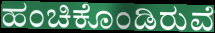
ಹಂಚಿಕೊಂಡಿರುವೆ